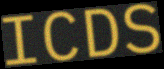
ICDS